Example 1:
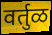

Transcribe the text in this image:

वर्तुळ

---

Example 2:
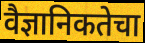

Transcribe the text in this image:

वैज्ञानिकतेचा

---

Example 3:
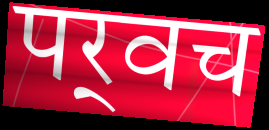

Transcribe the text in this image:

पर्वच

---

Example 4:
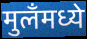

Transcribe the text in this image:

मुलँमध्ये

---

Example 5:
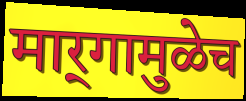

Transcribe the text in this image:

मार्गामुळेच